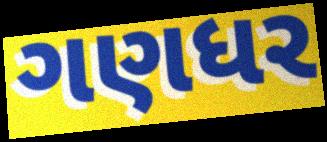
ગણધર